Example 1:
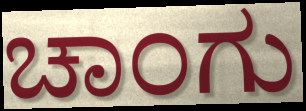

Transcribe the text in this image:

ಚಾಂಗು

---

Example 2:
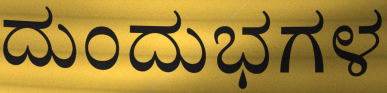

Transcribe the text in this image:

ದುಂದುಭಗಳ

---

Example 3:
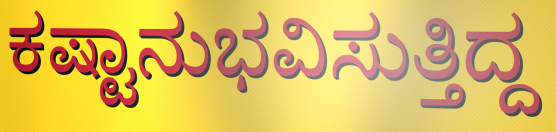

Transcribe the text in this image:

ಕಷ್ಟಾನುಭವಿಸುತ್ತಿದ್ದ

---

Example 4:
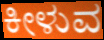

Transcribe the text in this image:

ಕೀಳುವ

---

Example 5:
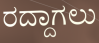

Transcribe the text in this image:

ರದ್ದಾಗಲು